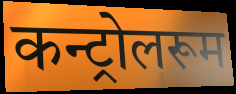
कन्ट्रोलरूम